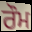
ਰੌਮ